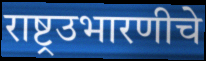
राष्ट्रउभारणीचे